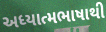
અધ્યાત્મભાષાથી